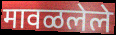
मावळलेले